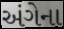
અંગેના